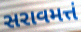
સરાવમત્તં